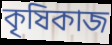
কৃষিকাজ